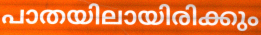
പാതയിലായിരിക്കും